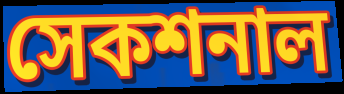
সেকশনাল